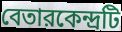
বেতারকেন্দ্রটি